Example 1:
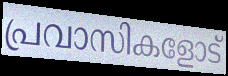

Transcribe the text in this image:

പ്രവാസികളോട്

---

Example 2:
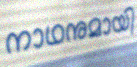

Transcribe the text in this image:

നാഥനുമായി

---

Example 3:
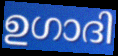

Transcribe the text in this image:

ഉഗാദി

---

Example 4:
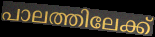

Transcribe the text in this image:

പാലത്തിലേക്ക്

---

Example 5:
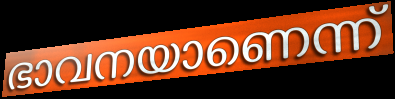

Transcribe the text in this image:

ഭാവനയാണെന്ന്